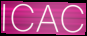
ICAC